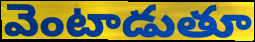
వెంటాడుతూ